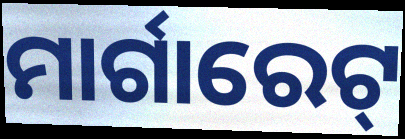
ମାର୍ଗାରେଟ୍